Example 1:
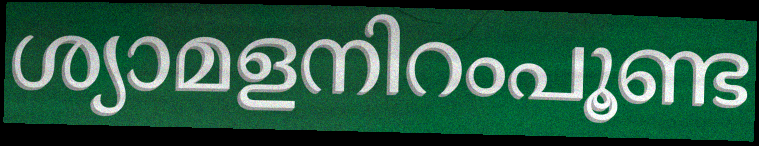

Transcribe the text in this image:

ശ്യാമളനിറംപൂണ്ട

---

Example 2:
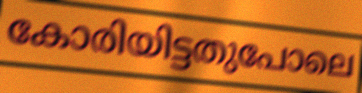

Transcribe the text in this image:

കോരിയിട്ടതുപോലെ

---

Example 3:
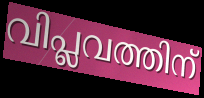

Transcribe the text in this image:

വിപ്ലവത്തിന്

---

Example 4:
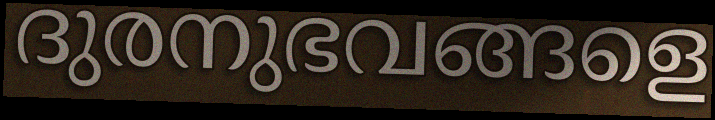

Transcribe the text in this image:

ദുരനുഭവങ്ങളെ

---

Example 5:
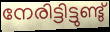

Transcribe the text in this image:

നേരിട്ടിട്ടുണ്ടു്